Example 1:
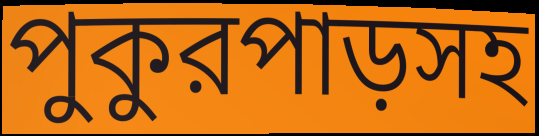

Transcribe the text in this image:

পুকুরপাড়সহ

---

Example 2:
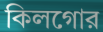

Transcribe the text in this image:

কিলগোর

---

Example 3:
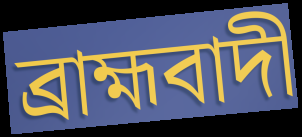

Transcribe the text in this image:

ব্রাহ্মবাদী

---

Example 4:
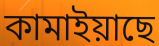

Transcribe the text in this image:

কামাইয়াছে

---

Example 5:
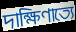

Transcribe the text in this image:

দাক্ষিণাত্যে